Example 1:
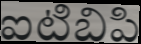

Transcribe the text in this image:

ఐటిబిపి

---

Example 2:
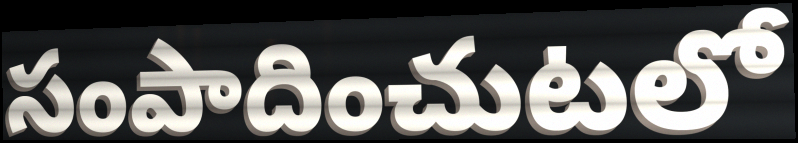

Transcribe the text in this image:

సంపాదించుటలో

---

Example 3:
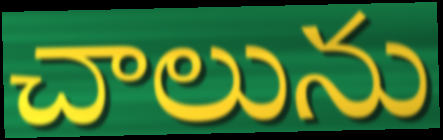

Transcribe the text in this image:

చాలును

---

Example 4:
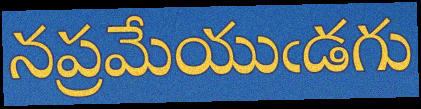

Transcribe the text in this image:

నప్రమేయుఁడగు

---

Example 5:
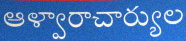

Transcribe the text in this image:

ఆళ్వారాచార్యుల